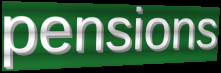
pensions